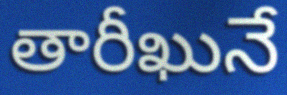
తారీఖునే